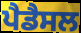
ਪੈਡੈਸਲ